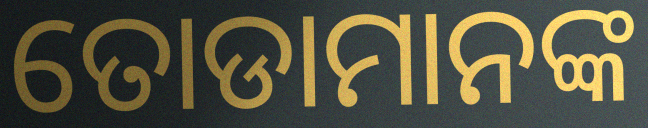
ତୋଡାମାନଙ୍କ